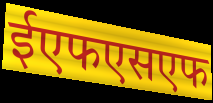
ईएफएसएफ